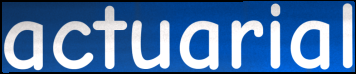
actuarial